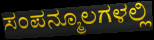
ಸಂಪನ್ಮೂಲಗಳಲ್ಲಿ